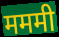
मममी